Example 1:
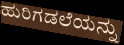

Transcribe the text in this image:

ಹುರಿಗಡಲೆಯನ್ನು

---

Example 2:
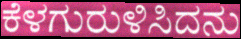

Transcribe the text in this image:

ಕೆಳಗುರುಳಿಸಿದನು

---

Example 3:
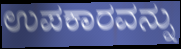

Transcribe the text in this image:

ಉಪಕಾರವನ್ನು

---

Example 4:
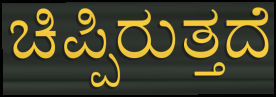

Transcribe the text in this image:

ಚಿಪ್ಪಿರುತ್ತದೆ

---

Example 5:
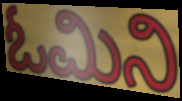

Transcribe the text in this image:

ಓಮಿನಿ